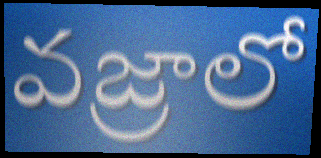
వజ్రాలో